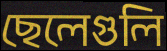
ছেলেগুলি